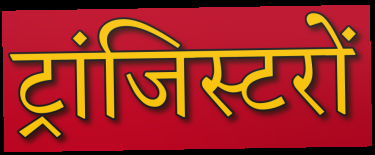
ट्रांजिस्टरों